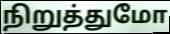
நிறுத்துமோ